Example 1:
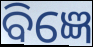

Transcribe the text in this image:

ବିଜ୍ଞେ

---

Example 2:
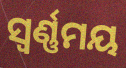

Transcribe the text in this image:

ସ୍ୱର୍ଣ୍ଣମୟ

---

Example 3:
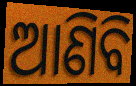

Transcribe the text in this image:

ଆଣିବି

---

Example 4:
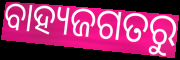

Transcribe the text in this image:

ବାହ୍ୟଜଗତରୁ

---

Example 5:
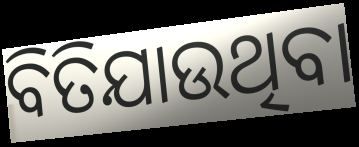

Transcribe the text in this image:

ବିତିଯାଉଥିବା